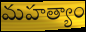
మహత్యాం